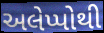
અલેપ્પોથી